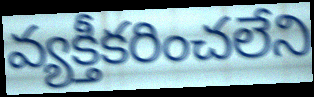
వ్యక్తీకరించలేని